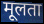
मूलता